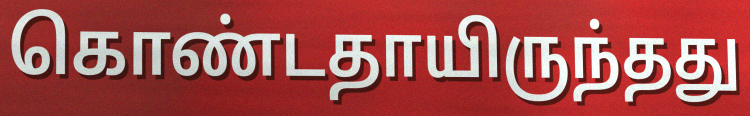
கொண்டதாயிருந்தது